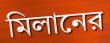
মিলানের